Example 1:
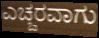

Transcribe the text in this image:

ಎಚ್ಚರವಾಗು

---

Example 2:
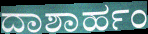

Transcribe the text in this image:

ದಾಶಾರ್ಹಂ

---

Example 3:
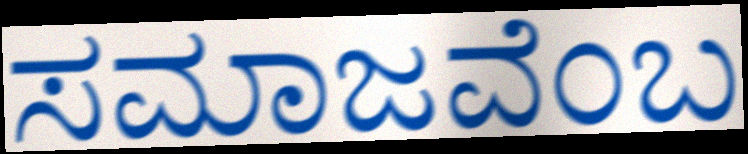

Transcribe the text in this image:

ಸಮಾಜವೆಂಬ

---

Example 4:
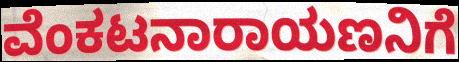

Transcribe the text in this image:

ವೆಂಕಟನಾರಾಯಣನಿಗೆ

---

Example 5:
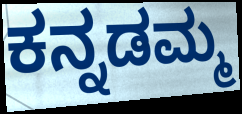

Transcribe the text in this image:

ಕನ್ನಡಮ್ಮ